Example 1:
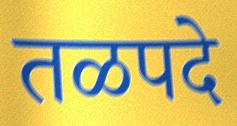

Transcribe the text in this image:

तळपदे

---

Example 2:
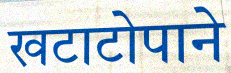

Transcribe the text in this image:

खटाटोपाने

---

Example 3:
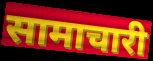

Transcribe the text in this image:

सामाचारी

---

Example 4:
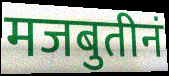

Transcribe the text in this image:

मजबुतीनं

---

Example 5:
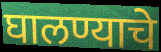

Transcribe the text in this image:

घालण्याचे